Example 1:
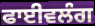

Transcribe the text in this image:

ਫਾਈਵਲੰਗ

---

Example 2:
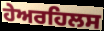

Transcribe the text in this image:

ਹੇਅਰਹਿਲਸ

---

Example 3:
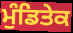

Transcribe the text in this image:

ਮੁੰਡਿਤੇਕ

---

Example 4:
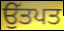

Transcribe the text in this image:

ਉੱਤਪਤ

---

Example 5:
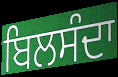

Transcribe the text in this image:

ਬਿਲਸੰਦਾ